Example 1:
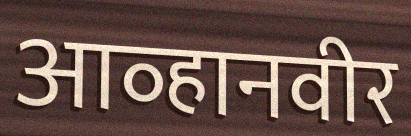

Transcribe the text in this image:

आव्हानवीर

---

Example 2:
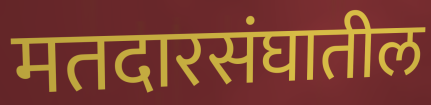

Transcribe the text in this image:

मतदारसंघातील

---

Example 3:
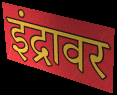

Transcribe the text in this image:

इंद्रावर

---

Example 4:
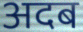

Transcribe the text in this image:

अदब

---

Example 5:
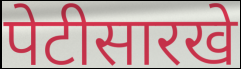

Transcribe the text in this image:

पेटीसारखे